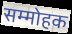
सम्मोहक